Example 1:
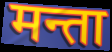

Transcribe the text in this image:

मन्ता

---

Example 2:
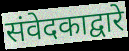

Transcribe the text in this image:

संवेदकाद्वारे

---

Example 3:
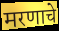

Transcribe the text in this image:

मरणाचे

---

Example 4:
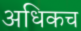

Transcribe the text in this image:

अधिकच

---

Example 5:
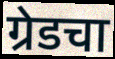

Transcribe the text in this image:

ग्रेडचा